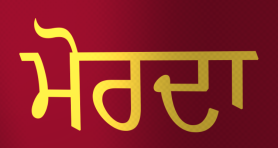
ਮੋਰਦਾ